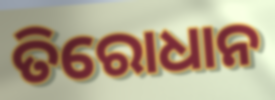
ତିରୋଧାନ